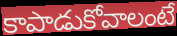
కాపాడుకోవాలంటే